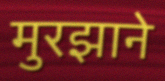
मुरझाने